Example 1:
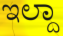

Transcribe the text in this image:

ಇಲ್ದಾ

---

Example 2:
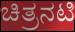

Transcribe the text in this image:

ಚಿತ್ರನಟಿ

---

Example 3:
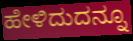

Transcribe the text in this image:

ಹೇಳಿದುದನ್ನೂ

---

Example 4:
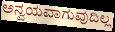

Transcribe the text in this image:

ಅನ್ವಯವಾಗುವುದಿಲ್ಲ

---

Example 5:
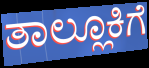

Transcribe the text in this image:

ತಾಲ್ಲೂಕಿಗೆ